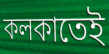
কলকাতেই